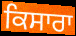
ਕਿਸਾਰਾ